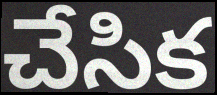
చేసిక